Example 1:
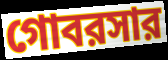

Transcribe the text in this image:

গোবরসার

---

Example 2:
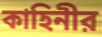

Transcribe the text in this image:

কাহিনীর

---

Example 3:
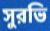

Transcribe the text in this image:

সুরভি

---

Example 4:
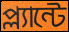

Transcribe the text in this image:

প্ল্যান্টে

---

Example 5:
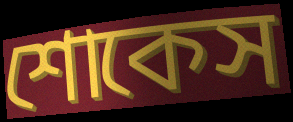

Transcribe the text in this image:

শোকেস